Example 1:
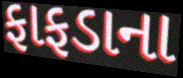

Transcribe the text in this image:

ફાફડાના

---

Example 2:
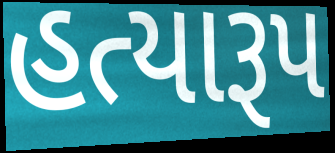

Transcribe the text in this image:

હત્યારૂપ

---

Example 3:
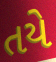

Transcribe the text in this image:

તયે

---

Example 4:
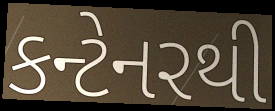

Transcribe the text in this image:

કન્ટેનરથી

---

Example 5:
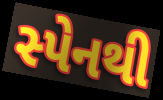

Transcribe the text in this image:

સ્પેનથી